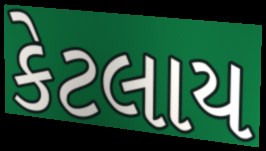
કેટલાય